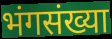
भंगसंख्या